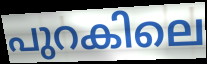
പുറകിലെ